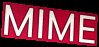
MIME